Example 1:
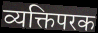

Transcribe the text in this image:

व्यक्तिपरक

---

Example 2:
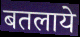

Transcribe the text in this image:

बतलाये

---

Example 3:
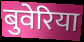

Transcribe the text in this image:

बुवेरिया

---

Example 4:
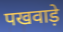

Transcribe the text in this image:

पखवाड़े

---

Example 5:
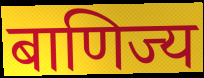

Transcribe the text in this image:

बाणिज्य